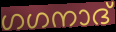
ഗഗനാദ്